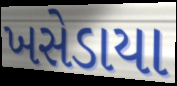
ખસેડાયા